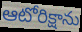
ఆటోరిక్షాను